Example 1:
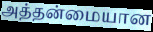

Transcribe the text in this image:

அத்தன்மையான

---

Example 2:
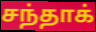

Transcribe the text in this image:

சந்தாக்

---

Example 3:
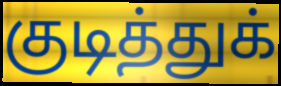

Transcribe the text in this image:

குடித்துக்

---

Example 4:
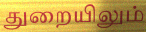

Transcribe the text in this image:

துறையிலும்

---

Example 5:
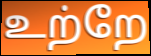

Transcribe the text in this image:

உற்றே